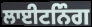
ਲਾਈਟਨਿੰਗ